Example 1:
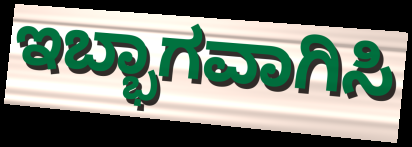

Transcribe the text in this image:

ಇಬ್ಭಾಗವಾಗಿಸಿ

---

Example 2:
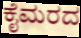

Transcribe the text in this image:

ಕೈಮರದ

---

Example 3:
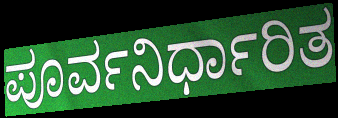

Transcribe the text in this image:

ಪೂರ್ವನಿರ್ಧಾರಿತ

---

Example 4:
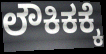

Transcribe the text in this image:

ಲೌಕಿಕಕ್ಕೆ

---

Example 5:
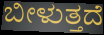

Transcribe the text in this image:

ಬೀಳುತ್ತದೆ